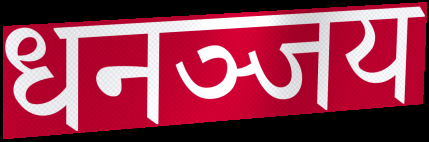
धनञ्जय